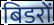
बिडरों